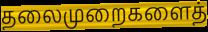
தலைமுறைகளைத்